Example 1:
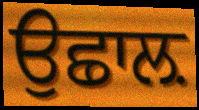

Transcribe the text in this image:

ਉਛਾਲ਼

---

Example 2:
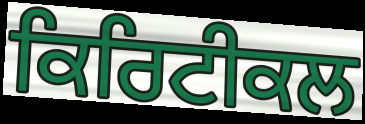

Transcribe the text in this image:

ਕਿਰਿਟੀਕਲ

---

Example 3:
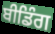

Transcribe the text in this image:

ਬੀਡਿੰਗ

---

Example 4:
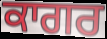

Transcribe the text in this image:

ਕਾਗਰ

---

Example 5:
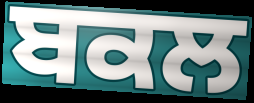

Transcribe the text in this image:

ਬਕਲ